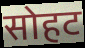
सोहट